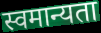
स्वमान्यता